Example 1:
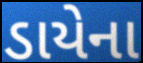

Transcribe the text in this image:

ડાયેના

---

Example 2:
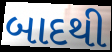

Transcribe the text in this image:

બાદથી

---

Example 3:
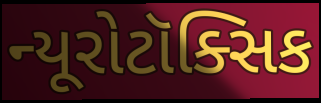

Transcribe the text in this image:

ન્યૂરોટૉક્સિક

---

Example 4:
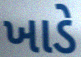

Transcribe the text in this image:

ખાડે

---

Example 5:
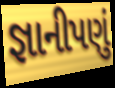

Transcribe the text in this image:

જ્ઞાનીપણું